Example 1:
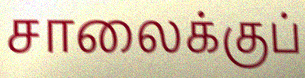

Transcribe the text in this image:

சாலைக்குப்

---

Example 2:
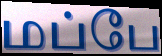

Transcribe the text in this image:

மப்பே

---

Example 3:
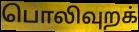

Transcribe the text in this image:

பொலிவுறக்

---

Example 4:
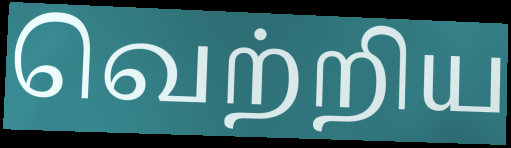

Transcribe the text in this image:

வெற்றிய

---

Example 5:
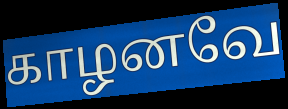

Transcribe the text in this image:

காழனவே